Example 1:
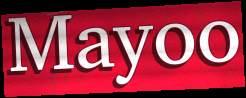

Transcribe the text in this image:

Mayoo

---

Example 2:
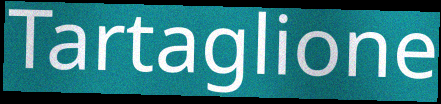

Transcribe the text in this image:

Tartaglione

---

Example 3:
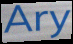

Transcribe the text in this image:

Ary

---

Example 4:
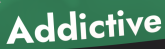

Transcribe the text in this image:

Addictive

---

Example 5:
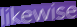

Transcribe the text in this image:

likewise